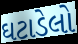
ઘટાડેલો